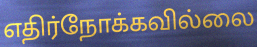
எதிர்நோக்கவில்லை